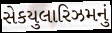
સેકયુલારિઝમનું